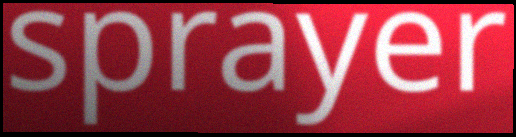
sprayer